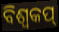
ବିଶ୍ବକପ୍